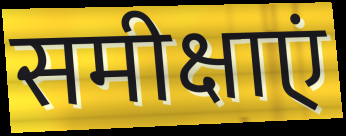
समीक्षाएं